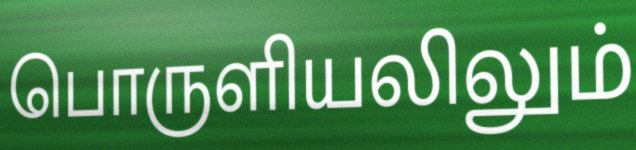
பொருளியலிலும்